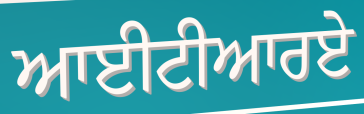
ਆਈਟੀਆਰਏ